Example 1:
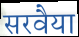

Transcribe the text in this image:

सरवैया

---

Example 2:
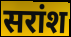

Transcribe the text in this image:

सरांश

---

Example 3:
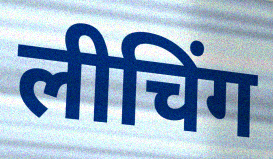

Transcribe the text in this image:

लीचिंग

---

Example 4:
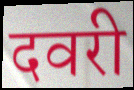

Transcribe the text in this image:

दवरी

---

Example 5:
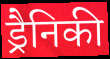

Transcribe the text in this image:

ड्रैनिकी